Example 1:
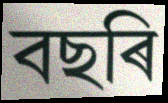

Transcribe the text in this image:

বছৰি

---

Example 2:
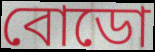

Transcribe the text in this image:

বোডো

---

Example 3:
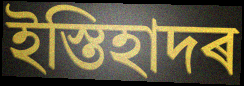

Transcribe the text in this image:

ইস্তিহাদৰ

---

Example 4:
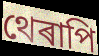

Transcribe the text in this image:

থেৰাপি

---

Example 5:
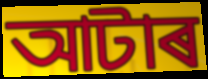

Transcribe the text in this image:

আটাৰ